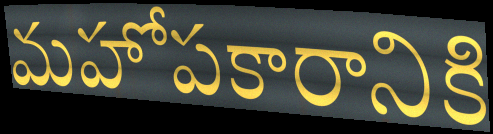
మహోపకారానికి